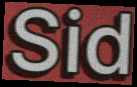
Sid